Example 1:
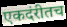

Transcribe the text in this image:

एकदंरीतच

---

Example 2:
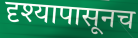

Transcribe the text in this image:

दृश्यापासूनच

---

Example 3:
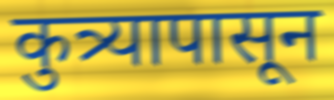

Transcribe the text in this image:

कुत्र्यापासून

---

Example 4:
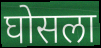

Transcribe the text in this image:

घोसला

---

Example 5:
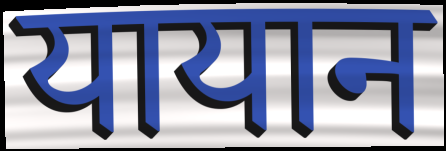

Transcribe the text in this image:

यायान